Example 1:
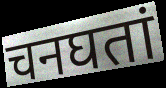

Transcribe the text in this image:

चनघतां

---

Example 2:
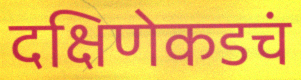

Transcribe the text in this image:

दक्षिणेकडचं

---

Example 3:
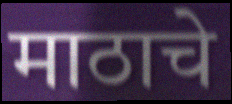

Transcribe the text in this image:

माठाचे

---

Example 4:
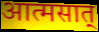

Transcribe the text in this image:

आत्मसात्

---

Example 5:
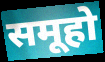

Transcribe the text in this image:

समूहो